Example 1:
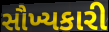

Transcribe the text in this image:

સૌખ્યકારી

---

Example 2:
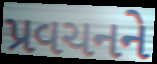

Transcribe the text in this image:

પ્રવચનને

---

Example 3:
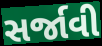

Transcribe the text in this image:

સર્જાવી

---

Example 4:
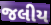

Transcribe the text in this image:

જલીય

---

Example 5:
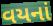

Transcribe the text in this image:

વયનાં